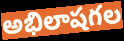
అభిలాషగల